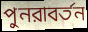
পুনরাবর্তন